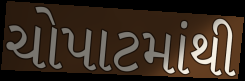
ચોપાટમાંથી